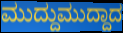
ಮುದ್ದುಮುದ್ದಾದ